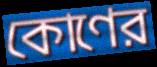
কোণের